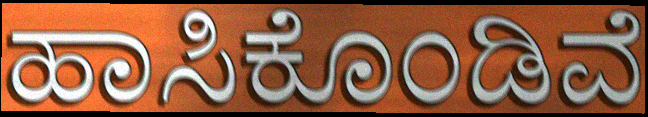
ಹಾಸಿಕೊಂಡಿವೆ